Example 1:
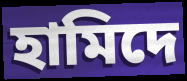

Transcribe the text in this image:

হামিদে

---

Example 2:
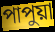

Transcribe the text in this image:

পাপুয়া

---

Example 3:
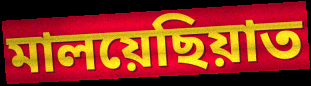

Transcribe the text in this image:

মালয়েছিয়াত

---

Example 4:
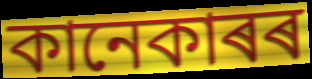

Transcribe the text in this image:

কানেকাৰৰ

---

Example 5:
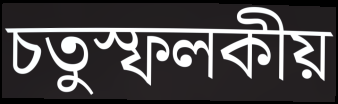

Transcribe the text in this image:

চতুস্ফলকীয়